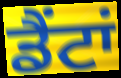
ਡੈਂਟਾਂ